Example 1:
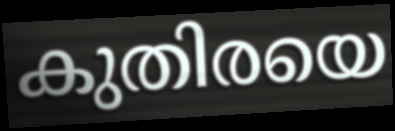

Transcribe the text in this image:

കുതിരയെ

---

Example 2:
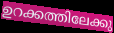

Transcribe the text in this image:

ഉറക്കത്തിലേക്കു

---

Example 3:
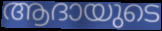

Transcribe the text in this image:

ആദായുടെ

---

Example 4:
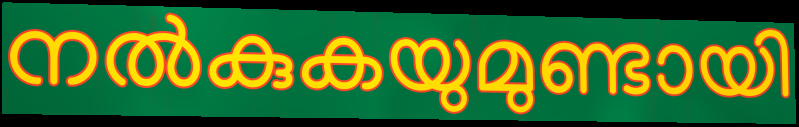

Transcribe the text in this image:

നൽകുകയുമുണ്ടായി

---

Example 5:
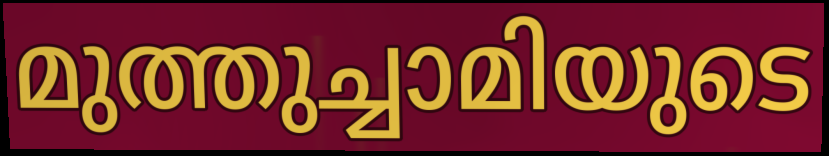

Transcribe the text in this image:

മുത്തുച്ചാമിയുടെ